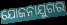
ଯୋଜନାଯୁଗର